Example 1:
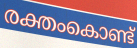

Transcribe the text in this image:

രക്തംകൊണ്ട്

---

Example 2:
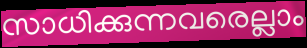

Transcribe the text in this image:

സാധിക്കുന്നവരെല്ലാം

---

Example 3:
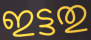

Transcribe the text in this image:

ഇട്ടതു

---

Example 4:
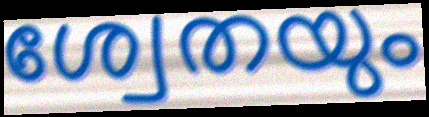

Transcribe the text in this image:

ശ്വേതയും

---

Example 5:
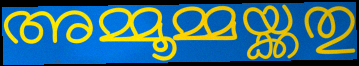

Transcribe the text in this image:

അമ്മൂമ്മയ്ക്കതു